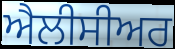
ਐਲੀਸੀਅਰ